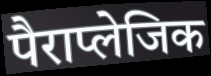
पैराप्लेजिक